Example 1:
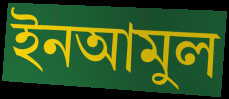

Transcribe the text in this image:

ইনআমুল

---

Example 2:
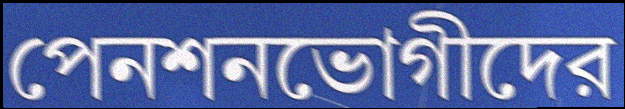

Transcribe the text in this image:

পেনশনভোগীদের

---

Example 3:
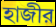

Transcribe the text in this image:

হাজীর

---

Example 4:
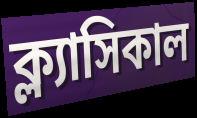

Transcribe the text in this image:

ক্ল্যাসিকাল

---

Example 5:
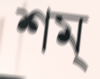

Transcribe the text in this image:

শম্